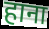
हाना